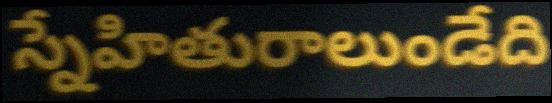
స్నేహితురాలుండేది